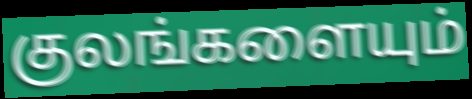
குலங்களையும்